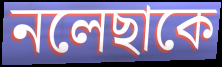
নলেছাকে